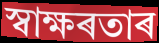
স্বাক্ষৰতাৰ